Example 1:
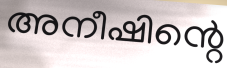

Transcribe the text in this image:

അനീഷിന്റെ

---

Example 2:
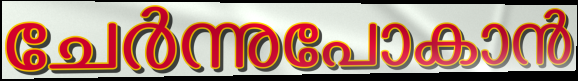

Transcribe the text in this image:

ചേർന്നുപോകാൻ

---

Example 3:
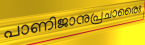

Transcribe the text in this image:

പാണിജാനുപ്രചാരൈഃ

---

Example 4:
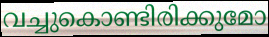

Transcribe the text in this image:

വച്ചുകൊണ്ടിരിക്കുമോ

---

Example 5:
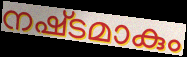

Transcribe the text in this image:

നഷ്‌ടമാകും